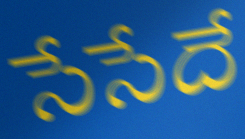
సేసేదే